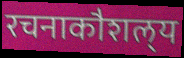
रचनाकौशल्य